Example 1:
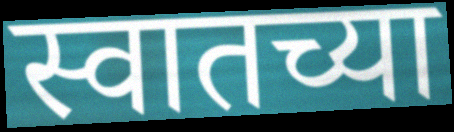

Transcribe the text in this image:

स्वातच्या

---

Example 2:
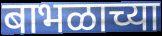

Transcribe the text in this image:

बाभळाच्या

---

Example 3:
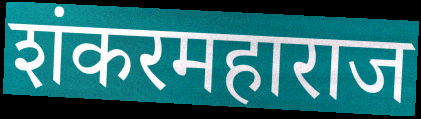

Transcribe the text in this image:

शंकरमहाराज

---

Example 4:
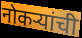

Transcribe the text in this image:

नोकऱ्यांची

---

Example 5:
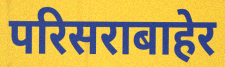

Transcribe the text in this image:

परिसराबाहेर